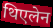
थिएलेन